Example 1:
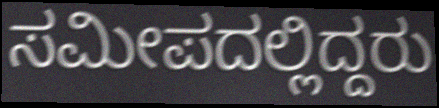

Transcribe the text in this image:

ಸಮೀಪದಲ್ಲಿದ್ದರು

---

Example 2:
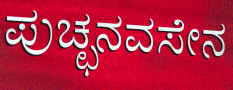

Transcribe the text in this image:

ಪುಚ್ಛನವಸೇನ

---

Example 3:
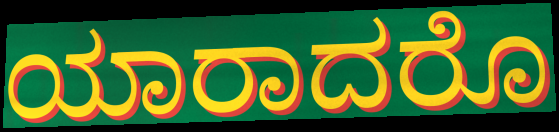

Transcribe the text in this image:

ಯಾರಾದರೊ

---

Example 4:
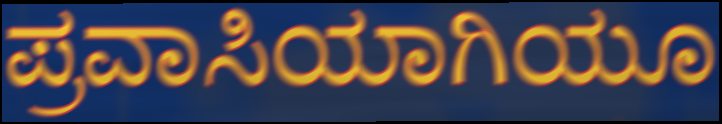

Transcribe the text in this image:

ಪ್ರವಾಸಿಯಾಗಿಯೂ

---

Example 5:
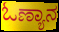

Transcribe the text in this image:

ಓಣ್ಯಾನ